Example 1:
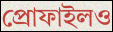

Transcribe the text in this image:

প্রোফাইলও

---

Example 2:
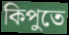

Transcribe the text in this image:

কিপুতে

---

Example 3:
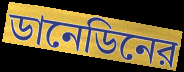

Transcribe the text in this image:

ডানেডিনের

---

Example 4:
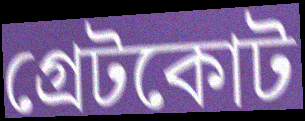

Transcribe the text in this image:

গ্রেটকোট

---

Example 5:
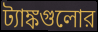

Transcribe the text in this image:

ট্যাঙ্কগুলোর